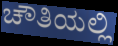
ಚೌತಿಯಲ್ಲಿ